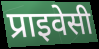
प्राइवेसी